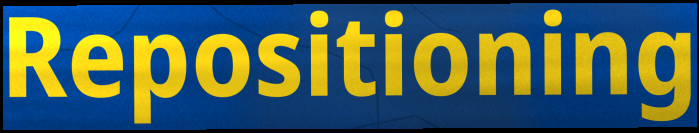
Repositioning